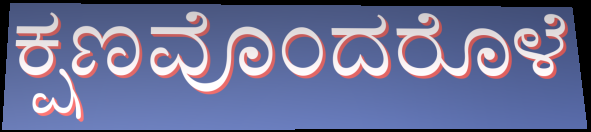
ಕ್ಷಣವೊಂದರೊಳೆ